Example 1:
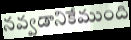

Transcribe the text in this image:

నవ్వడానికేముంది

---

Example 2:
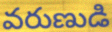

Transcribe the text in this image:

వరుణుడి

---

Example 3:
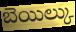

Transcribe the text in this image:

బెయిల్కు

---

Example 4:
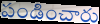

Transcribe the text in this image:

పండించారు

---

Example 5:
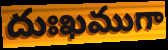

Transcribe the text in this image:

దుఃఖముగా